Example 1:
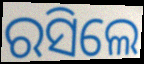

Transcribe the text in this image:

ରସିଲେ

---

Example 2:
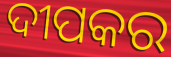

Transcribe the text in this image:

ଦୀପକର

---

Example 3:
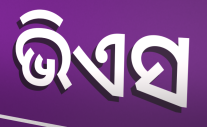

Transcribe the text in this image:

ଭିଏସ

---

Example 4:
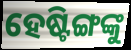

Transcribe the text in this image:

ହେଷ୍ଟିଙ୍ଗଙ୍କୁ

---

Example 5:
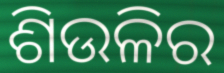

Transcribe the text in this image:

ଶିଉଳିର